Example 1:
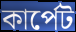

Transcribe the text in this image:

কার্পেট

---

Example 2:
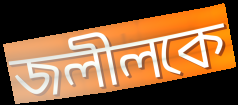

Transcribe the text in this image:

জলীলকে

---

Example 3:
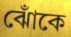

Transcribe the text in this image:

ঝোঁকে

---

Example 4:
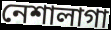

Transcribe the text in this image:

নেশালাগা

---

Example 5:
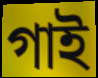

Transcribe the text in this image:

গাই